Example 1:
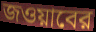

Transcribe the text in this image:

জওয়াবের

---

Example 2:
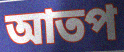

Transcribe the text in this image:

আতপ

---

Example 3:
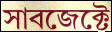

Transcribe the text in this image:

সাবজেক্টে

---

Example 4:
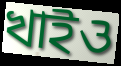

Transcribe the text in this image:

খাইও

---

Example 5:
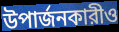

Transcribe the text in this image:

উপার্জনকারীও